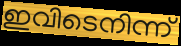
ഇവിടെനിന്ന്